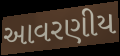
આવરણીય